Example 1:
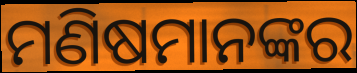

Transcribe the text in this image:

ମଣିଷମାନଙ୍କର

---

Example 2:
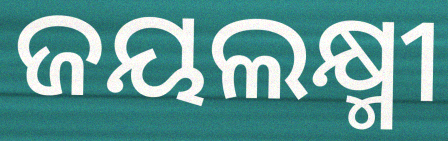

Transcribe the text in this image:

ଜୟଲକ୍ଷ୍ମୀ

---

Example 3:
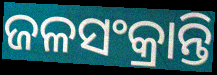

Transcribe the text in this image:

ଜଳସଂକ୍ରାନ୍ତି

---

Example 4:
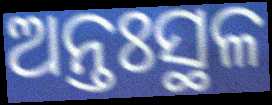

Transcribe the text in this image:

ଅନ୍ତଃସ୍ଥଳ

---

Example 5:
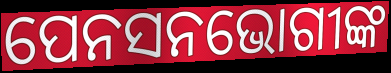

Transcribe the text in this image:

ପେନସନଭୋଗୀଙ୍କ